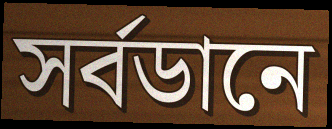
সর্বডানে